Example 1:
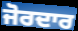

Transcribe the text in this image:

ਜੋਰਦਾਰ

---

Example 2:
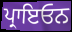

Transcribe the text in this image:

ਪ੍ਰਾਇਓਨ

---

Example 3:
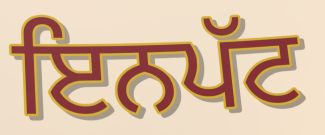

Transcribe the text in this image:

ਇਨਪੱਟ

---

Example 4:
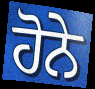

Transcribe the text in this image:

ਹੋਨੇ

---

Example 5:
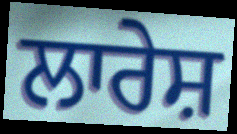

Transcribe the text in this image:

ਲਾਰੇਸ਼